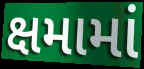
ક્ષમામાં